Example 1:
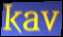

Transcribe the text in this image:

kav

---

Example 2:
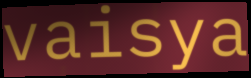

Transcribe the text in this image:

vaisya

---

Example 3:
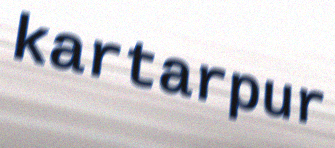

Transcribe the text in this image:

kartarpur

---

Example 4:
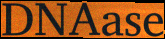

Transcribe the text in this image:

DNAase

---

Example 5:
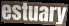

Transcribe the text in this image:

estuary